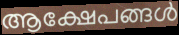
ആക്ഷേപങ്ങൾ